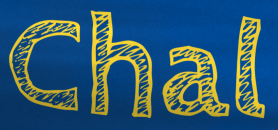
Chal